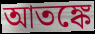
আতঙ্কে